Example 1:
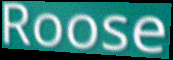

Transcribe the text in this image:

Roose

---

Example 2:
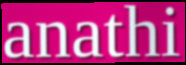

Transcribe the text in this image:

anathi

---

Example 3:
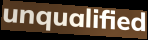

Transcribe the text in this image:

unqualified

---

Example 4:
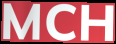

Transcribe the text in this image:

MCH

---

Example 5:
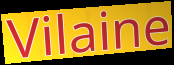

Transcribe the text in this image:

Vilaine